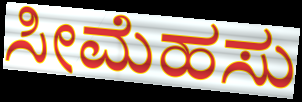
ಸೀಮೆಹಸು